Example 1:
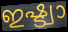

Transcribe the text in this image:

ഇഷ്ട്വാ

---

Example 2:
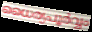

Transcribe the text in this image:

ധൈര്യപൂർവ്വം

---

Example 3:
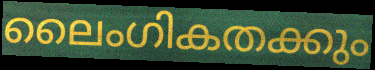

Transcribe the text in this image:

ലൈംഗികതക്കും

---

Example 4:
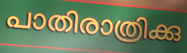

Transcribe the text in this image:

പാതിരാത്രിക്കു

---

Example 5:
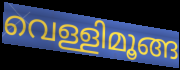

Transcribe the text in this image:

വെള്ളിമൂങ്ങ